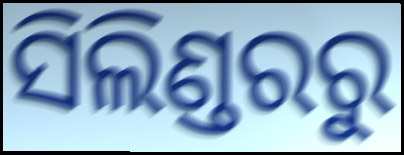
ସିଲିଣ୍ଡରରୁ